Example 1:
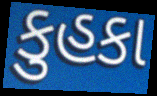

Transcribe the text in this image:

કુહકા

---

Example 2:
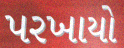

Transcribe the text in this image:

પરખાયો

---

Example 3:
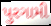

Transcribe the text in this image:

પુરગામી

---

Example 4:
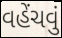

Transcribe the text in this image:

વહેંચવું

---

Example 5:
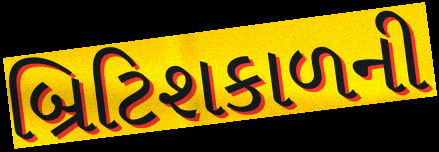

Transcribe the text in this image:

બ્રિટિશકાળની